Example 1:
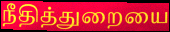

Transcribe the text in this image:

நீதித்துறையை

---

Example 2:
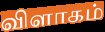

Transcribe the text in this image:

விளாகம்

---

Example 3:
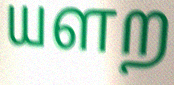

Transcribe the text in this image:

யளற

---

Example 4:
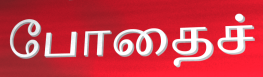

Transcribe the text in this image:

போதைச்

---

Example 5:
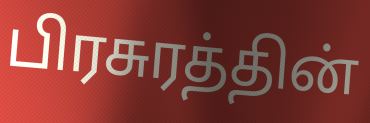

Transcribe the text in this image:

பிரசுரத்தின்